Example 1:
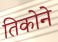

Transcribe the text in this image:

तिकोने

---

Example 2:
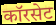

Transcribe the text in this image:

कॉरसेट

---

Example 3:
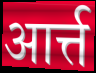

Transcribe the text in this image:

आर्त्त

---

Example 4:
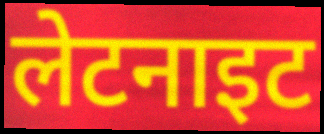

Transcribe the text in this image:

लेटनाइट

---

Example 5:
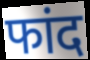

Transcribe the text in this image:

फांद